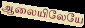
ஆலையிலேயே